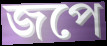
জপে